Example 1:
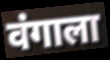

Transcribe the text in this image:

वंगाला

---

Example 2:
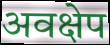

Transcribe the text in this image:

अवक्षेप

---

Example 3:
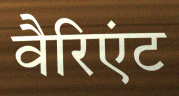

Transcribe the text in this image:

वैरिएंट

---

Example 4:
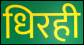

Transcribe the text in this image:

धिरही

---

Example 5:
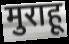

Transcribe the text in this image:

मुराहू